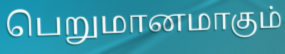
பெறுமானமாகும்